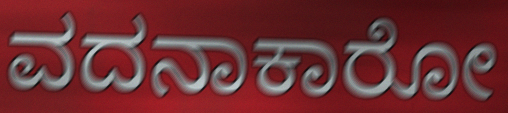
ವದನಾಕಾರೋ